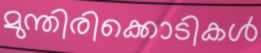
മുന്തിരിക്കൊടികൾ